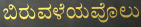
ಬಿರುವಳೆಯವೊಲು